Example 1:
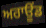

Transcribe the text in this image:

ਅਰਾਊਂਡ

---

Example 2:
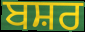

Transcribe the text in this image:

ਬਸ਼ਰ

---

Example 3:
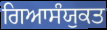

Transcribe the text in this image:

ਗਿਆਸੰਯੁਕਤ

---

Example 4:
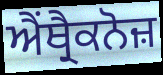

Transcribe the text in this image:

ਐਂਥ੍ਰੈਕਨੋਜ਼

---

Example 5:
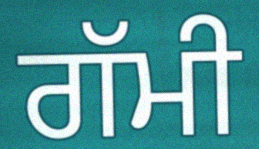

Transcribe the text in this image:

ਗੱਮੀ